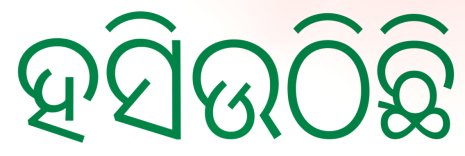
ହସିଉଠିଛି